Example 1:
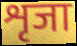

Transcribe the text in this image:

शृजा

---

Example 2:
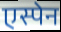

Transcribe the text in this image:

एस्पेन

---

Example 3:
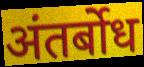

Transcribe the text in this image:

अंतर्बोध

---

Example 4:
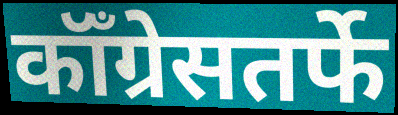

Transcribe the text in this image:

कॉँग्रेसतर्फे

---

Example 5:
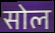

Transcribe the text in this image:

सोल